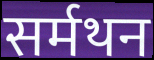
सर्मथन